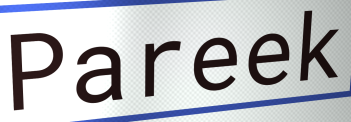
Pareek